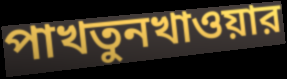
পাখতুনখাওয়ার